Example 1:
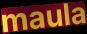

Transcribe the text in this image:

maula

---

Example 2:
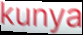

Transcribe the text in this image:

kunya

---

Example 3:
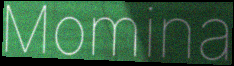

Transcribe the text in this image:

Momina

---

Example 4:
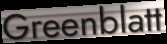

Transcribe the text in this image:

Greenblatt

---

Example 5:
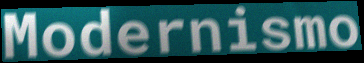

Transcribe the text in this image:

Modernismo